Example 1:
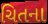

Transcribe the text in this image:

ચિતના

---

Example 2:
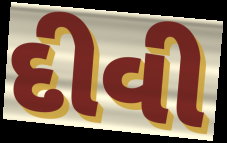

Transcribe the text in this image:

દીવી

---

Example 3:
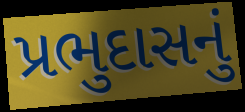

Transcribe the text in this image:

પ્રભુદાસનું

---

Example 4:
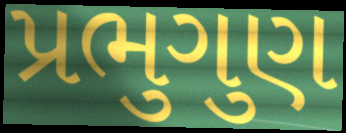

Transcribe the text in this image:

પ્રભુગુણ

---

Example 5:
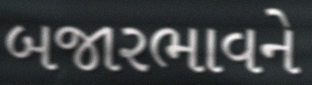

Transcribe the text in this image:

બજારભાવને